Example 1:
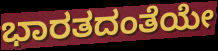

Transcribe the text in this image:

ಭಾರತದಂತೆಯೇ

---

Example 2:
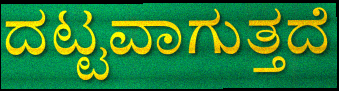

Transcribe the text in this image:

ದಟ್ಟವಾಗುತ್ತದೆ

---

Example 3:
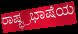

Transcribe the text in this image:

ರಾಷ್ಟ್ರಭಾಷೆಯ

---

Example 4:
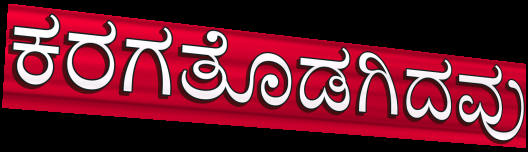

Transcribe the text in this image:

ಕರಗತೊಡಗಿದವು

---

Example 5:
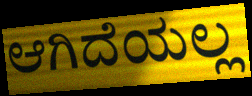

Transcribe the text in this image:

ಆಗಿದೆಯಲ್ಲ